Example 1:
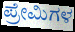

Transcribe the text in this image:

ಪ್ರೇಮಿಗಳ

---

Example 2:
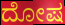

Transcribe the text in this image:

ದೋಷ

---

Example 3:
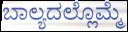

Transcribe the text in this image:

ಬಾಲ್ಯದಲ್ಲೊಮ್ಮೆ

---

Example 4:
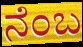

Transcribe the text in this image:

ನೆಂಬ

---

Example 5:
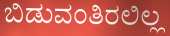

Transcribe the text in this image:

ಬಿಡುವಂತಿರಲಿಲ್ಲ